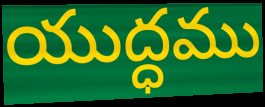
యుద్ధము